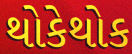
થોકેથોક